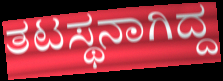
ತಟಸ್ಥನಾಗಿದ್ದ